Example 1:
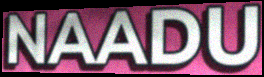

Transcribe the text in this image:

NAADU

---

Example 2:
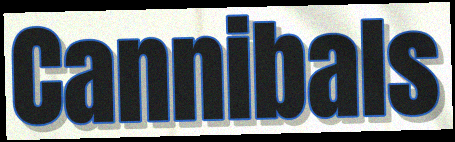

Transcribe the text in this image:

Cannibals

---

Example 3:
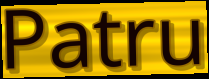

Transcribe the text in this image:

Patru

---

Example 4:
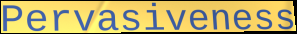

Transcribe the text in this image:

Pervasiveness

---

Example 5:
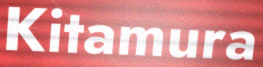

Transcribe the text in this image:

Kitamura